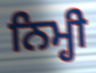
ਨਿਮ੍ਹੀ